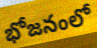
భోజనంలో